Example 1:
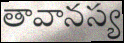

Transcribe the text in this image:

తావానస్య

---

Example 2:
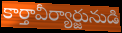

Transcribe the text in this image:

కార్తావీర్యార్జునుడి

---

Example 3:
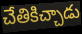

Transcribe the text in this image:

చేతికిచ్చాడు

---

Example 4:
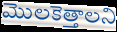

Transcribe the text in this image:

మొలకెత్తాలని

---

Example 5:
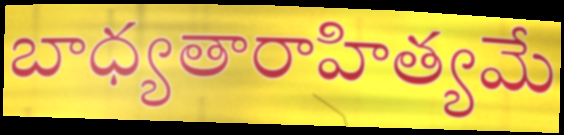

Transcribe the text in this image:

బాధ్యతారాహిత్యమే